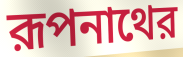
রূপনাথের